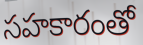
సహకారంతో